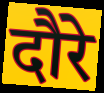
दौरे